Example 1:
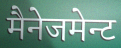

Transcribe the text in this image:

मैनेजमेन्ट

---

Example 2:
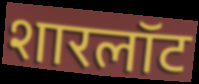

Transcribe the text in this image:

शारलॉट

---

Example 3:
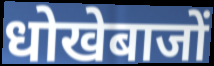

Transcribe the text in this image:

धोखेबाजों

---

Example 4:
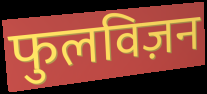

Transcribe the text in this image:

फुलविज़न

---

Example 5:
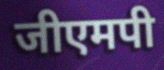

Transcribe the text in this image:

जीएमपी